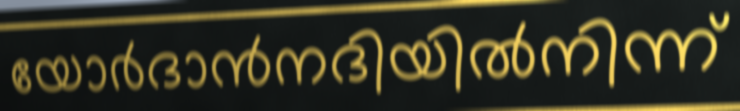
യോർദാൻനദിയിൽനിന്ന്